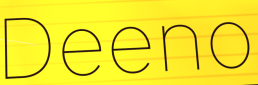
Deeno